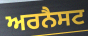
ਅਰਨੈਸਟ